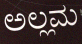
ಅಲ್ಲಮ